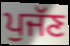
ਪੁਜੱਣ